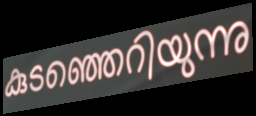
കുടഞ്ഞെറിയുന്നു